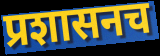
प्रशासनच